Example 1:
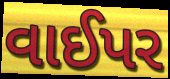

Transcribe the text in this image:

વાઈપર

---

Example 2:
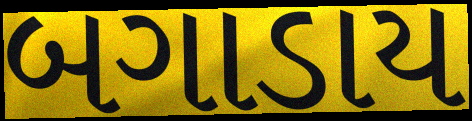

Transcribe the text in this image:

બગાડાય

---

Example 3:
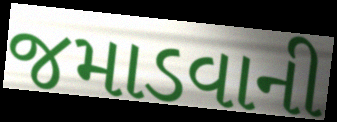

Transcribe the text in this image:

જમાડવાની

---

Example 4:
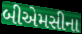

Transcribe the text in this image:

બીએમસીના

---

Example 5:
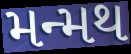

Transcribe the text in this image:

મન્મથ